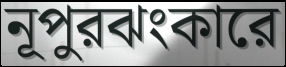
নূপুরঝংকারে